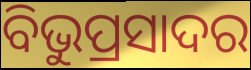
ବିଭୁପ୍ରସାଦର